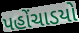
પહોંચાડયો